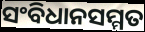
ସଂବିଧାନସମ୍ମତ